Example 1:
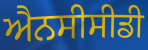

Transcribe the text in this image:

ਐਨਸੀਸੀਡੀ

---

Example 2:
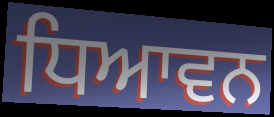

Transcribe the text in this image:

ਧਿਆਵਨ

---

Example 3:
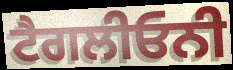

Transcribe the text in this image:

ਟੈਗਲੀਓਨੀ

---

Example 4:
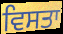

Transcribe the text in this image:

ਵਿਸਤਾ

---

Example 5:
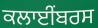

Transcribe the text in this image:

ਕਲਾਈਂਬਰਸ